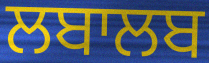
ਲਬਾਲਬ